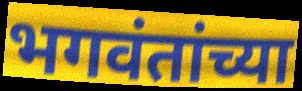
भगवंतांच्या